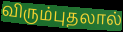
விரும்புதலால்